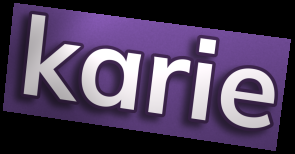
karie